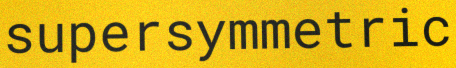
supersymmetric